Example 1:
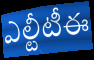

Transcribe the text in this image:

ఎల్టీటీఈ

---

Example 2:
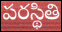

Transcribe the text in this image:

పరస్థితి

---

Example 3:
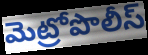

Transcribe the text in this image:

మెట్రోపొలీస్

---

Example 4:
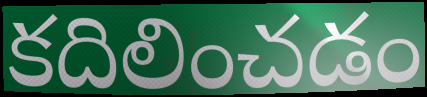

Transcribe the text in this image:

కదిలించడం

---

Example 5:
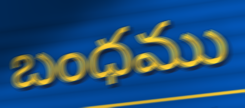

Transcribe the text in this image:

బంధము